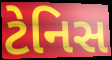
ટેનિસ